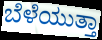
ಬೆಳೆಯುತ್ತಾ